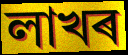
লাখৰ